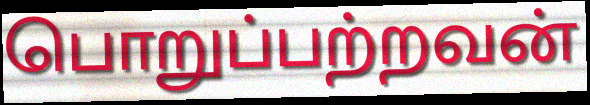
பொறுப்பற்றவன்